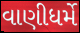
વાણીધર્મે